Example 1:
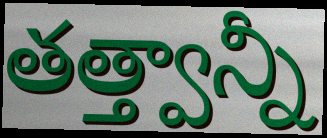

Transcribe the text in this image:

తత్త్వాన్నీ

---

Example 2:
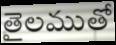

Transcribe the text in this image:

తైలముతో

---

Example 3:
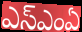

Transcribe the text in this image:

ఎస్ఎంఏ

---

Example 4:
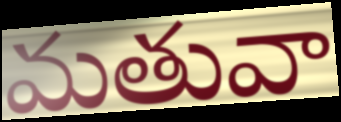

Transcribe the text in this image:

మతువా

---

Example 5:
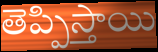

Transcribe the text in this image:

తెప్పిస్తాయి